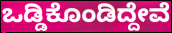
ಒಡ್ಡಿಕೊಂಡಿದ್ದೇವೆ